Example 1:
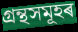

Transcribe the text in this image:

গ্ৰন্থসমূহৰ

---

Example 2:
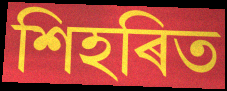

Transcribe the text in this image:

শিহৰিত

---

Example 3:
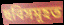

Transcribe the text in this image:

ছবিসমূহত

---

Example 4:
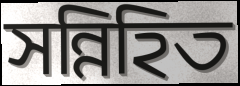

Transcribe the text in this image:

সন্নিহিত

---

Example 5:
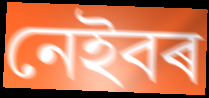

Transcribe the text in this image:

নেইবৰ